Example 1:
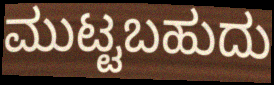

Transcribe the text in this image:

ಮುಟ್ಟಬಹುದು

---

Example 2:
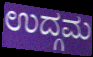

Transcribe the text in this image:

ಉದ್ಗಮ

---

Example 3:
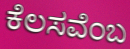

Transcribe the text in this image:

ಕೆಲಸವೆಂಬ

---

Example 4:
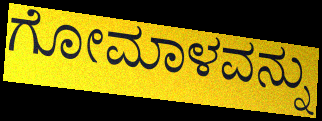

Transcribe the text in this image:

ಗೋಮಾಳವನ್ನು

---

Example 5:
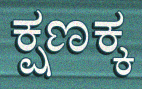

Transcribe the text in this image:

ಕ್ಷಣಕ್ಕ